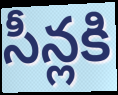
సీన్లకి